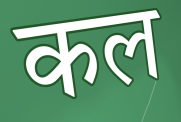
कल